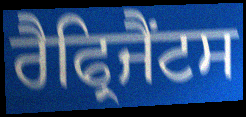
ਰੈਫ੍ਰਿਜੈਂਟਸ